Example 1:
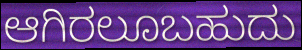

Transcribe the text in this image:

ಆಗಿರಲೂಬಹುದು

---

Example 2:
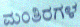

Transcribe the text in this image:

ಮಂತಿರಗಳ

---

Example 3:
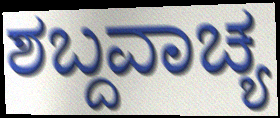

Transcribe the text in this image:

ಶಬ್ದವಾಚ್ಯ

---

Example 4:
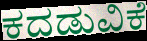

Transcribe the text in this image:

ಕದಡುವಿಕೆ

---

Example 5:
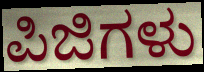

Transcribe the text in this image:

ಪಿಜಿಗಳು